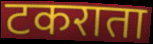
टकराता